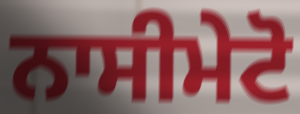
ਨਾਸੀਮੇਟੋ